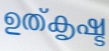
ഉത്കൃഷ്ട